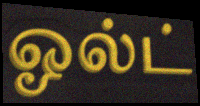
ஓல்ட்